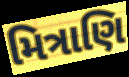
મિત્રાણિ